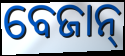
ବେଜାନ୍